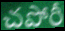
చపోరీ